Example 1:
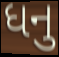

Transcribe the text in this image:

ધનુ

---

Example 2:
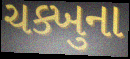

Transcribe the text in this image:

ચક્ખુના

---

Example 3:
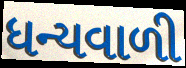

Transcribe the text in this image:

ધન્યવાળી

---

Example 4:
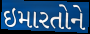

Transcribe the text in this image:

ઇમારતોને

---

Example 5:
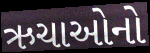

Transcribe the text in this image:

ઋચાઓનો